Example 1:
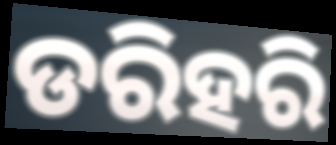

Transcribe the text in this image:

ଡରିହରି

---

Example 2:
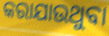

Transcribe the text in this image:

କରାଯାଉଥୁବା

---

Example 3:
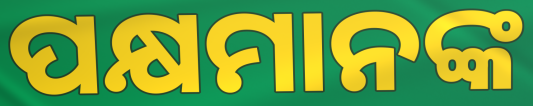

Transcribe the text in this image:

ପକ୍ଷମାନଙ୍କ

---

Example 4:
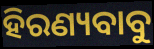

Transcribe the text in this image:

ହିରଣ୍ୟବାବୁ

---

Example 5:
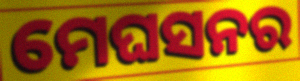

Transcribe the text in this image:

ମେଘସନର